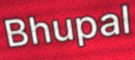
Bhupal